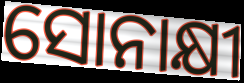
ସୋନାକ୍ଷୀ